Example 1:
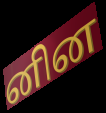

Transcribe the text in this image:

னின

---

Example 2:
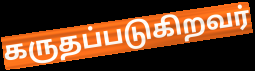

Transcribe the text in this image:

கருதப்படுகிறவர்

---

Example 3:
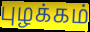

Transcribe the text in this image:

புழக்கம்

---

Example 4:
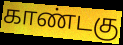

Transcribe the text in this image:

காண்டகு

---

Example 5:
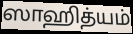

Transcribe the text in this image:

ஸாஹித்யம்